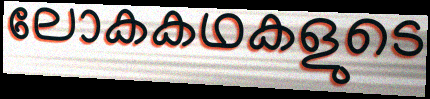
ലോകകഥകളുടെ